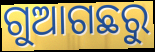
ଗୁଆଗଛରୁ